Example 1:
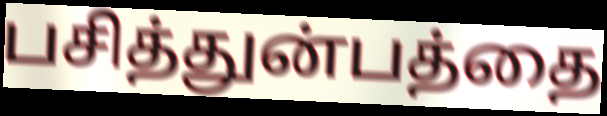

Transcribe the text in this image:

பசித்துன்பத்தை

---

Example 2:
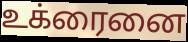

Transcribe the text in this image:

உக்ரைனை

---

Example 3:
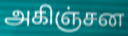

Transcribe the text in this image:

அகிஞ்சன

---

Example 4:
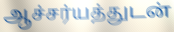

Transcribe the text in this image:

ஆச்சர்யத்துடன்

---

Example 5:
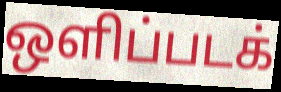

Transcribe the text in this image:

ஒளிப்படக்